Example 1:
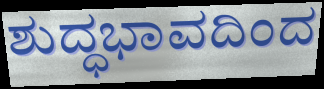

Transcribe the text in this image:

ಶುದ್ಧಭಾವದಿಂದ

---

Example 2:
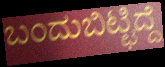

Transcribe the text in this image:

ಬಂದುಬಿಟ್ಟಿದ್ದೆ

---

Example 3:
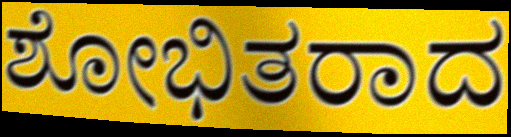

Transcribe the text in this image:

ಶೋಭಿತರಾದ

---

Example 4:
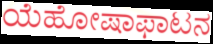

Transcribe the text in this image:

ಯೆಹೋಷಾಫಾಟನ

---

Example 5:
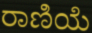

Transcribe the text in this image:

ರಾಣಿಯೆ